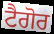
ਟੈਗੋਰ